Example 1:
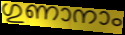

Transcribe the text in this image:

ഗുണാനാം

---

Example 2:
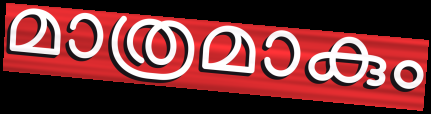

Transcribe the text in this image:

മാത്രമാകും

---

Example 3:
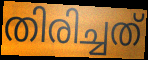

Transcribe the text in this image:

തിരിച്ചത്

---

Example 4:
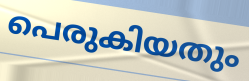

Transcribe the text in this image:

പെരുകിയതും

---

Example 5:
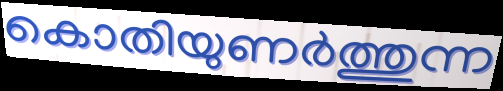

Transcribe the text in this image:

കൊതിയുണർത്തുന്ന